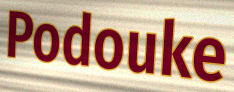
Podouke